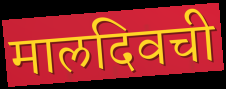
मालदिवची